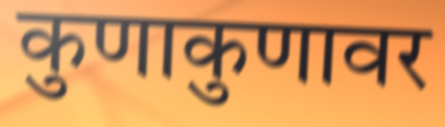
कुणाकुणावर